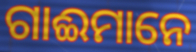
ଗାଈମାନେ